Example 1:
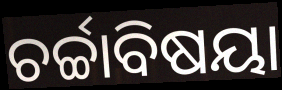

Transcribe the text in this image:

ଚର୍ଚ୍ଚାବିଷୟା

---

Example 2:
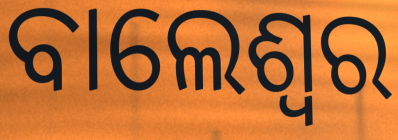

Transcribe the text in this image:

ବାଲେଶ୍ବର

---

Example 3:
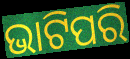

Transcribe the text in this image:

ଭାଟିପରି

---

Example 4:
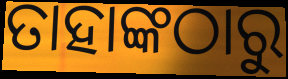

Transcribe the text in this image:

ତାହାଙ୍କଠାରୁ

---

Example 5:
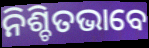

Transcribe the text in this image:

ନିଶ୍ଚିତଭାବେ